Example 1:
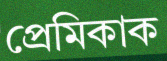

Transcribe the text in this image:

প্ৰেমিকাক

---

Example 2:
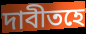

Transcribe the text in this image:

দাবীতহে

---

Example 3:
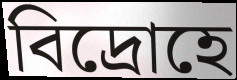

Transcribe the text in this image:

বিদ্ৰোহে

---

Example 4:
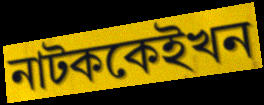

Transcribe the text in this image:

নাটককেইখন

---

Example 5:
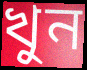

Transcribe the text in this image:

খুন